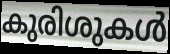
കുരിശുകൾ